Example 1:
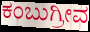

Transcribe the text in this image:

ಕಂಬುಗ್ರೀವ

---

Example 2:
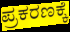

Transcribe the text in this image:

ಪ್ರಕರಣಕ್ಕೆ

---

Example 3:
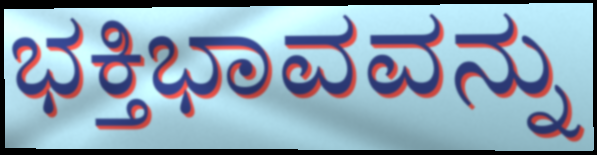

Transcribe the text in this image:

ಭಕ್ತಿಭಾವವನ್ನು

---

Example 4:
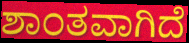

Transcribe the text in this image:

ಶಾಂತವಾಗಿದೆ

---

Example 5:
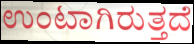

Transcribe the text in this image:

ಉಂಟಾಗಿರುತ್ತದೆ